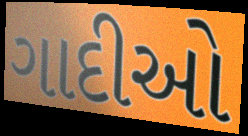
ગાદીઓ